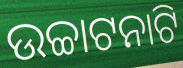
ଉଚ୍ଚାଟନାଟି